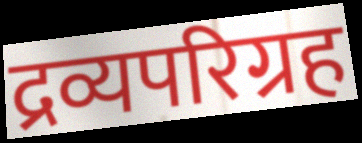
द्रव्यपरिग्रह